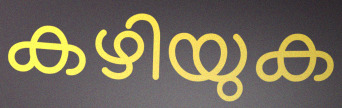
കഴിയുക